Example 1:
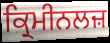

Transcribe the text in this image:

ਕ੍ਰਿਮੀਨਲਜ਼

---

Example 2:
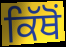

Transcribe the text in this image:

ਕਿੱਥੋੰ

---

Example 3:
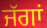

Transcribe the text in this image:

ਜੱਗਾਂ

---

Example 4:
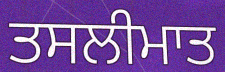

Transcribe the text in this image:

ਤਸਲੀਮਾਤ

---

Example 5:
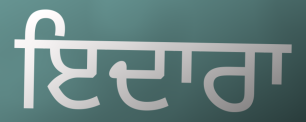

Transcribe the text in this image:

ਇਦਾਰਾ